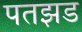
पतझड